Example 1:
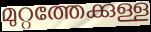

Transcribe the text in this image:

മുറ്റത്തേക്കുള്ള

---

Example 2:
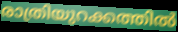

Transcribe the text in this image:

രാത്രിയുറക്കത്തിൽ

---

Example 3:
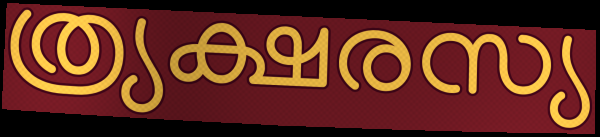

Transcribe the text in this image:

ത്ര്യക്ഷരസ്യ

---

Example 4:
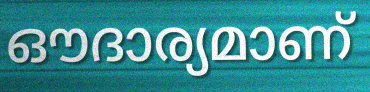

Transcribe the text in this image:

ഔദാര്യമാണ്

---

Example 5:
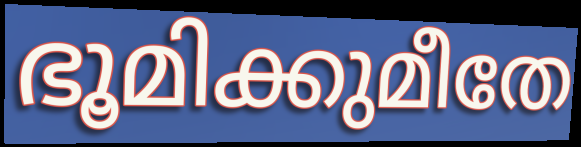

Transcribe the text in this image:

ഭൂമിക്കുമീതേ